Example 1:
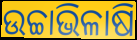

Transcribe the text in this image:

ଉଚ୍ଚାଭିଳାଷି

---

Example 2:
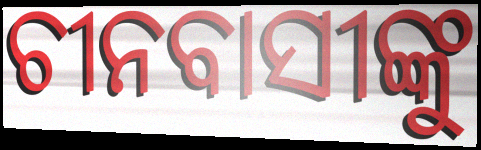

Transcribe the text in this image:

ଚୀନବାସୀଙ୍କୁ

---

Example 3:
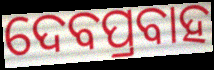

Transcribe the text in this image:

ଦେବପ୍ରବାହ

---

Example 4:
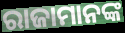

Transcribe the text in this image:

ରାଜାମାନଙ୍କ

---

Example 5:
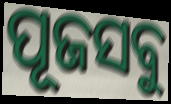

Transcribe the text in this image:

ପୂଜସବୁ